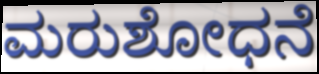
ಮರುಶೋಧನೆ